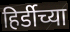
हिर्डीच्या